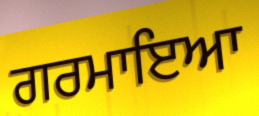
ਗਰਮਾਇਆ